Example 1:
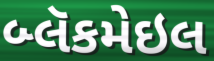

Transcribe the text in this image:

બ્લૅકમેઇલ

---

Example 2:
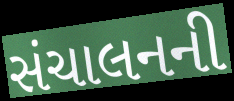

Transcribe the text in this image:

સંચાલનની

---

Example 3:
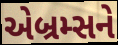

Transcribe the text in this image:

એબ્રમ્સને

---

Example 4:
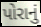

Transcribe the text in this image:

પોરાનું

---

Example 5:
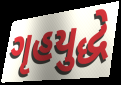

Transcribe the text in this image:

ગૃહયુદ્ધે